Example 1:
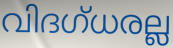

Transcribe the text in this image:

വിദഗ്ധരല്ല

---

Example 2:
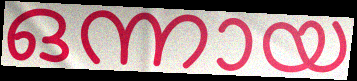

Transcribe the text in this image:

ഒന്നായ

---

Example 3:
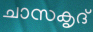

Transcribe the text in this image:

ചാസകൃദ്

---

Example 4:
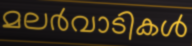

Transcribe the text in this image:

മലർവാടികൾ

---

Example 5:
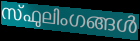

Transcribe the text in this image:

സ്ഫുലിംഗങ്ങൾ